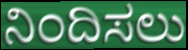
ನಿಂದಿಸಲು